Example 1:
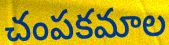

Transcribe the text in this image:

చంపకమాల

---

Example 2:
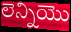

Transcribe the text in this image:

లెన్నియొ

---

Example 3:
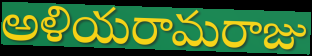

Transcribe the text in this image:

అళియరామరాజు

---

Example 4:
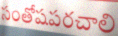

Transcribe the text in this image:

సంతోషపరచాలి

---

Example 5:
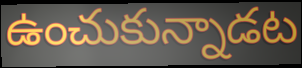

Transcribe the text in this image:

ఉంచుకున్నాడట